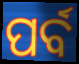
ପର୍ବ